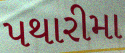
પથારીમા